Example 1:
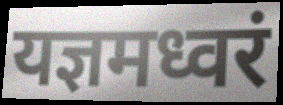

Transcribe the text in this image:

यज्ञमध्वरं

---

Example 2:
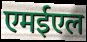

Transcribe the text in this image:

एमईएल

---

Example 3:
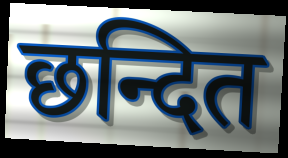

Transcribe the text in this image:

छन्दित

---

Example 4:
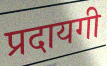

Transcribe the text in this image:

प्रदायगी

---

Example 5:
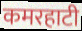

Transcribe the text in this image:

कमरहाटी